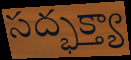
సద్భక్త్యా